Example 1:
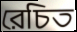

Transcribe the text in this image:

রেচিত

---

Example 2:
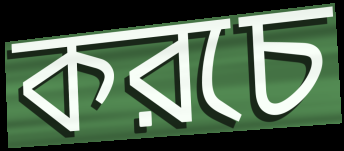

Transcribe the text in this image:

করচে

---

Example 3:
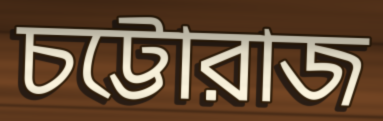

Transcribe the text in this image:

চট্টোরাজ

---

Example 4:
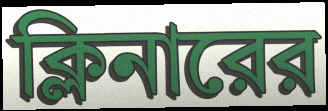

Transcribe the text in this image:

ক্লিনারের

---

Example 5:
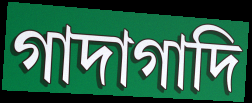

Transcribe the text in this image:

গাদাগাদি